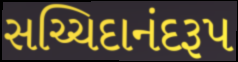
સચ્ચિદાનંદરૂપ